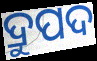
ଦ୍ରୁପଦ